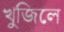
খুজিলে